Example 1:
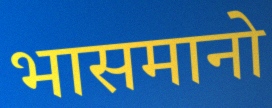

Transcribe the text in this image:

भासमानो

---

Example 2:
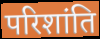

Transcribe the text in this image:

परिशांति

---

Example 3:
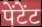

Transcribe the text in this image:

पेंटेंट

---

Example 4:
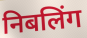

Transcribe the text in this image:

निबलिंग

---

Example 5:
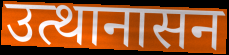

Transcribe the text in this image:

उत्थानासन